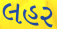
લહર